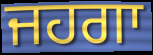
ਜਹਗਾ